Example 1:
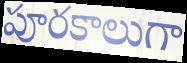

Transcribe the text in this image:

పూరకాలుగా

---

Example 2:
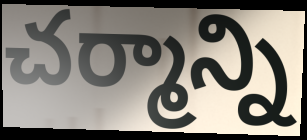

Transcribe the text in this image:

చర్మాన్ని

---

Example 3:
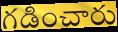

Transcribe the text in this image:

గడించారు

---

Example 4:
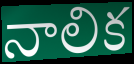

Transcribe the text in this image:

నాలిక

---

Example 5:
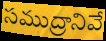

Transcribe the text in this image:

సముద్రానివే